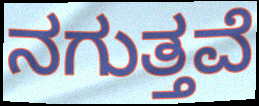
ನಗುತ್ತವೆ